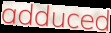
adduced